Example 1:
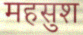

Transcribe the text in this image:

महसुश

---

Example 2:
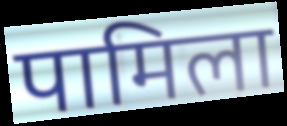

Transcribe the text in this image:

पामिला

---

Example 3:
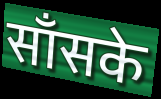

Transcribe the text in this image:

साँसके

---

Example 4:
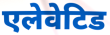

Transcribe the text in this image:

एलेवेटिड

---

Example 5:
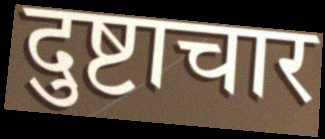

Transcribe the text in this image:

दुष्टाचार